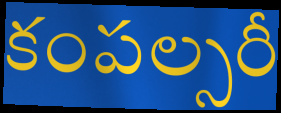
కంపల్సరీ